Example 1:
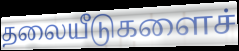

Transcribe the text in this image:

தலையீடுகளைச்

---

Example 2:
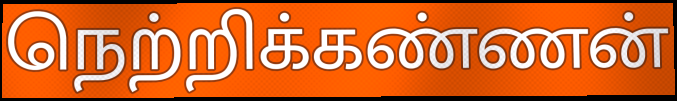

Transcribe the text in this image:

நெற்றிக்கண்ணன்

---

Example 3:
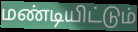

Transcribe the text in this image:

மண்டியிட்டும்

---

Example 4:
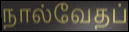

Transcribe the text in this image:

நால்வேதப்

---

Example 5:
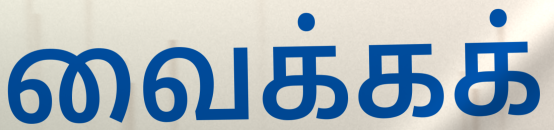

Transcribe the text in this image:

வைக்கக்